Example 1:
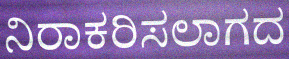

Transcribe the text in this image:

ನಿರಾಕರಿಸಲಾಗದ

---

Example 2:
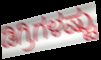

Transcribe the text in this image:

ಡಿಗ್ರಿಗಳಷ್ಟು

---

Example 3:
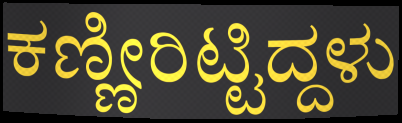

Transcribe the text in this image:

ಕಣ್ಣೀರಿಟ್ಟಿದ್ದಳು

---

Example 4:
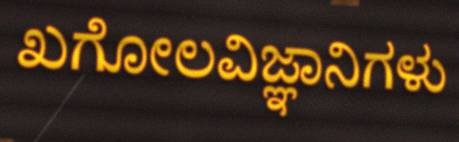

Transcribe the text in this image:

ಖಗೋಲವಿಜ್ಞಾನಿಗಳು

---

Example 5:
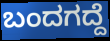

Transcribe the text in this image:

ಬಂದಗದ್ದೆ